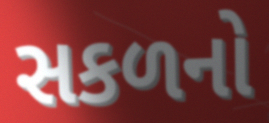
સકળનો